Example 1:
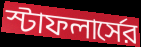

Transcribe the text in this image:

স্টাফলার্সের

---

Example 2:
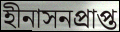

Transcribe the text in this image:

হীনাসনপ্রাপ্ত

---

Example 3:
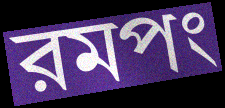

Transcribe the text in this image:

রমপং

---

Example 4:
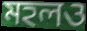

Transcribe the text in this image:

মহলও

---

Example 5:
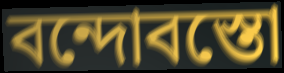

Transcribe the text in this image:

বন্দোবস্তো